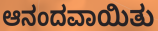
ಆನಂದವಾಯಿತು